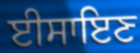
ਈਸਾਇਣ